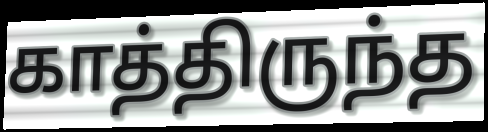
காத்திருந்த